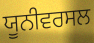
ਯੂਨੀਵਰਸਲ